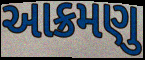
આક્રમણુ